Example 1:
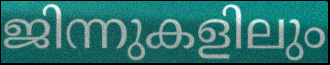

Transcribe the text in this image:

ജിന്നുകളിലും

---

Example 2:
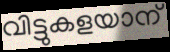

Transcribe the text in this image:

വിട്ടുകളയാന്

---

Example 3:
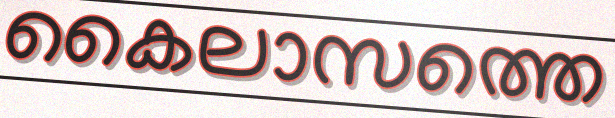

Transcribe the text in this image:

കൈലാസത്തെ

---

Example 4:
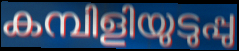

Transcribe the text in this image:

കമ്പിളിയുടുപ്പു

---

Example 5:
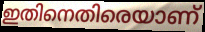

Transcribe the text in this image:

ഇതിനെതിരെയാണ്